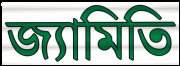
জ্যামিতি